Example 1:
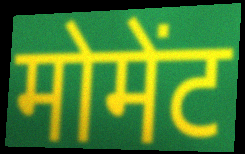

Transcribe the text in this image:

मोमेंट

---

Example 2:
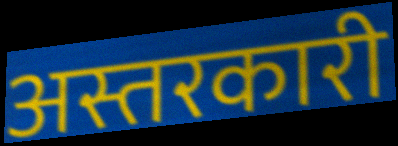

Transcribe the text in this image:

अस्तरकारी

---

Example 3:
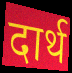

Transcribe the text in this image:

दार्थ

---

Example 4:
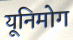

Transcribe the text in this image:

यूनिमोग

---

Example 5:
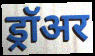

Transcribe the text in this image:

ड्रॉअर